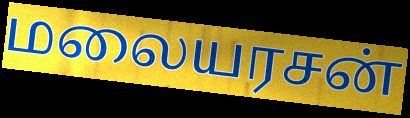
மலையரசன்